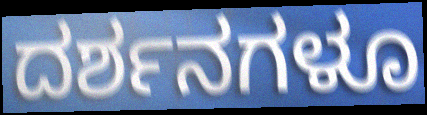
ದರ್ಶನಗಳೂ